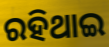
ରହିଥାଇ